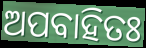
ଅପବାହିତଃ